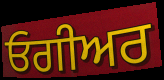
ਓਗੀਅਰ